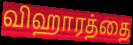
விஹாரத்தை